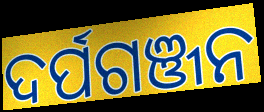
ଦର୍ପଗଞ୍ଜନ